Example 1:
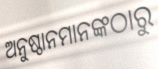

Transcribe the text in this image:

ଅନୁଷ୍ଠାନମାନଙ୍କଠାରୁ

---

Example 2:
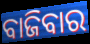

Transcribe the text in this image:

ବାଜିବାର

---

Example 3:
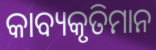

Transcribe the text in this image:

କାବ୍ୟକୃତିମାନ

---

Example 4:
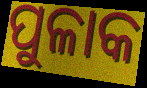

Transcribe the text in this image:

ପୁଳାକ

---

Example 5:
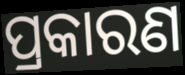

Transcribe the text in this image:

ପ୍ରକାରଣ